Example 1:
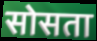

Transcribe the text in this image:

सोसता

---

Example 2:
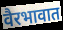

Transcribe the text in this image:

वैरभावात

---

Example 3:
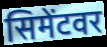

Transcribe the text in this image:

सिमेंटवर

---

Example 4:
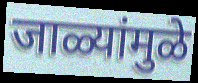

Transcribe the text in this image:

जाळ्यांमुळे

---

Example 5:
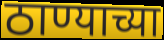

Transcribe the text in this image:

ठाण्याच्या